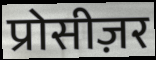
प्रोसीज़र